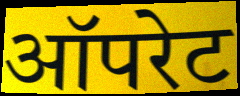
ऑपरेट